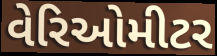
વેરિઓમીટર